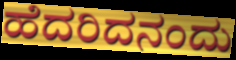
ಹೆದರಿದನಂದು